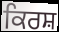
ਕਿਰਸ਼